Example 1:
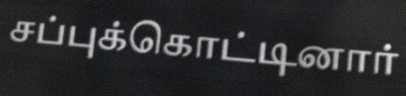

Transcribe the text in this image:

சப்புக்கொட்டினார்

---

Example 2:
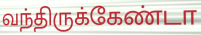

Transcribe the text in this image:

வந்திருக்கேண்டா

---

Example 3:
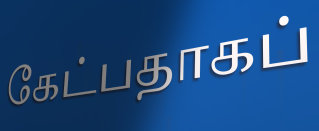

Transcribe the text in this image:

கேட்பதாகப்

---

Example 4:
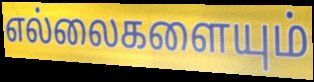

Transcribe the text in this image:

எல்லைகளையும்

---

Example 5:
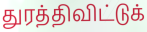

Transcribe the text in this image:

துரத்திவிட்டுக்